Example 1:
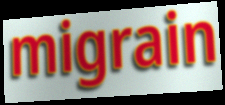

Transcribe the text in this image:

migrain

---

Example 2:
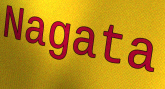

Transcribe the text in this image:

Nagata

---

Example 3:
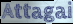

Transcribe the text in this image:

Attagai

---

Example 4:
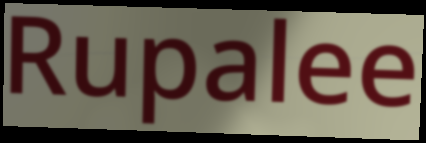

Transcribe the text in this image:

Rupalee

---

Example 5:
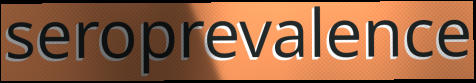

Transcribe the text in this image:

seroprevalence